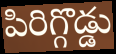
పిరిగ్గొడ్డు